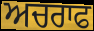
ਅਚਰਾਫ